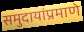
समुदायांप्रमाणे